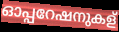
ഓപ്പറേഷനുകള്